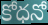
కోధనో